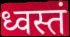
ध्वस्तं